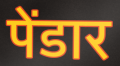
पेंडार